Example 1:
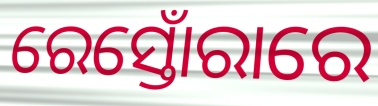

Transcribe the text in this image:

ରେସ୍ତୋଁରାରେ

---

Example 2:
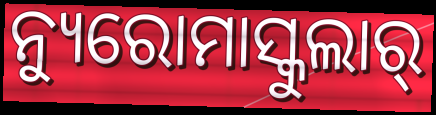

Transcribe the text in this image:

ନ୍ୟୁରୋମାସ୍କୁଲାର୍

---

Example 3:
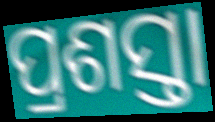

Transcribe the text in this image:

ପ୍ରଶସ୍ତା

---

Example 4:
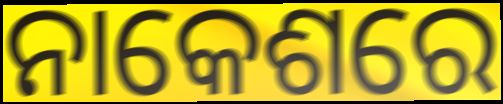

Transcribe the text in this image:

ନାକେଶରେ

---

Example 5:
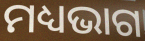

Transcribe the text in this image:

ମଧ୍ୟଭାଗ